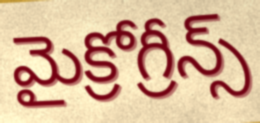
మైక్రోగ్రీన్స్